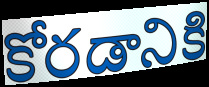
కోరడానికి